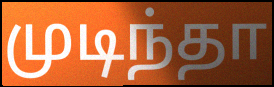
முடிந்தா